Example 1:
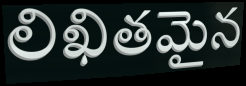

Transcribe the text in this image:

లిఖితమైన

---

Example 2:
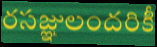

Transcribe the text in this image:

రసజ్ఞులందరికీ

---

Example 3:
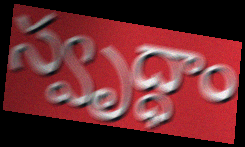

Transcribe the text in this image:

స్వృద్ధాం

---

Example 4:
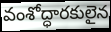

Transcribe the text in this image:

వంశోద్ధారకులైన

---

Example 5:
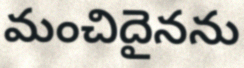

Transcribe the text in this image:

మంచిదైనను